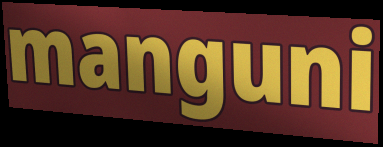
manguni